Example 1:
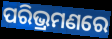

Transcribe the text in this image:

ପରିଭ୍ରମଣରେ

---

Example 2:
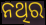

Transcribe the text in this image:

ନଥିର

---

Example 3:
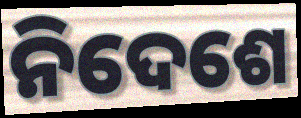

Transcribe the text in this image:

ନିଦେଶେ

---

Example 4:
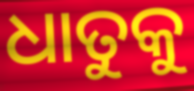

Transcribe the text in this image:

ଧାତୁକୁ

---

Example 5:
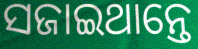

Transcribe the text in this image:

ସଜାଇଥାନ୍ତେ